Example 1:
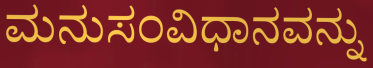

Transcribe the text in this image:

ಮನುಸಂವಿಧಾನವನ್ನು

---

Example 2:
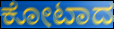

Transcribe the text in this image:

ಕೋಟಾದ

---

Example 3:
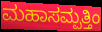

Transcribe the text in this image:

ಮಹಾಸಮ್ಪತ್ತಿಂ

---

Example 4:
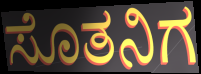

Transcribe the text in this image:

ಸೊತನಿಗ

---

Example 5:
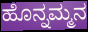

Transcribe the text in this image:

ಹೊನ್ನಮ್ಮನ